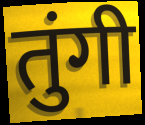
तुंगी